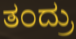
ತಂದ್ರು